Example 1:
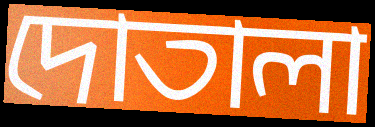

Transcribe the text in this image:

দোতালা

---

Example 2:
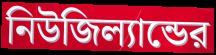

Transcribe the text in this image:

নিউজিল্যান্ডের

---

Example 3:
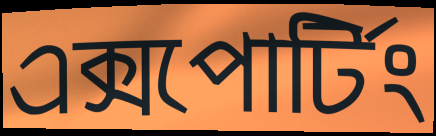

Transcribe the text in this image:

এক্সপোর্টিং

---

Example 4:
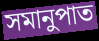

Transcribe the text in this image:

সমানুপাত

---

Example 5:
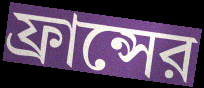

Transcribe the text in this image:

ফ্রান্সের